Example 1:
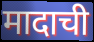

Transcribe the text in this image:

मादाची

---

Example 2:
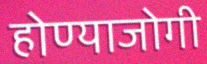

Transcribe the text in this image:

होण्याजोगी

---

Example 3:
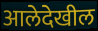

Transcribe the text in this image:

आलेदेखील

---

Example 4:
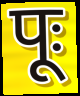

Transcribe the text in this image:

पूः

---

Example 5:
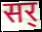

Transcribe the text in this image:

सर्